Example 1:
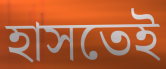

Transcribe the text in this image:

হাসতেই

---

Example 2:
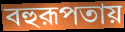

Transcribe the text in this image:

বহুরূপতায়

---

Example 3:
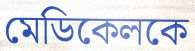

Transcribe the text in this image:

মেডিকেলকে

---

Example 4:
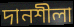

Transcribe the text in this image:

দানশীলা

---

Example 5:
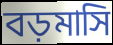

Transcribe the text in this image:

বড়মাসি